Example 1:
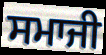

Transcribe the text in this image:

ਸਮਾਜੀ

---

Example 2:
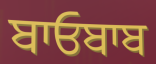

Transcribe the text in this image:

ਬਾਓਬਾਬ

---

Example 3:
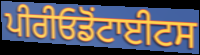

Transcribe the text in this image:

ਪੀਰੀਓਡੋਂਟਾਈਟਸ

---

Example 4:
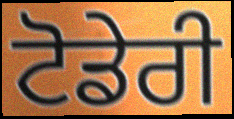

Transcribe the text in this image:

ਟੋਡੇਰੀ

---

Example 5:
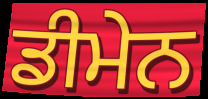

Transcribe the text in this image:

ਡੀਮੇਨ